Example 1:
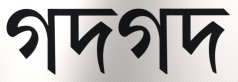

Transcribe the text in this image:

গদগদ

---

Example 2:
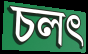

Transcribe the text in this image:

চলৎ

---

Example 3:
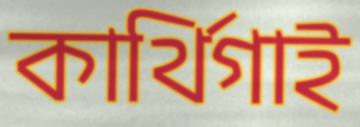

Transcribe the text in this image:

কার্থিগাই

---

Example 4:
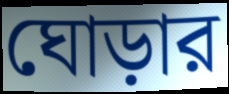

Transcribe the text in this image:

ঘোড়ার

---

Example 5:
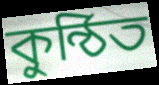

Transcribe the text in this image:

কুন্ঠিত